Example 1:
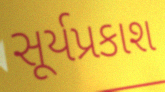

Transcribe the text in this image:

સૂર્યપ્રકાશ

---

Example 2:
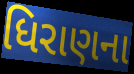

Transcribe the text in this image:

ધિરાણના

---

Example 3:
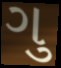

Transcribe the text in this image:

ગુ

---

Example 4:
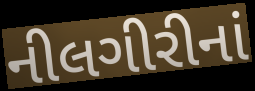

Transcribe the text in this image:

નીલગીરીનાં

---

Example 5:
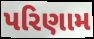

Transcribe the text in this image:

પરિણામ